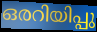
ഒരറിയിപ്പു